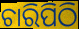
ଚାରିପିଠି